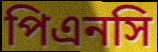
পিএনসি